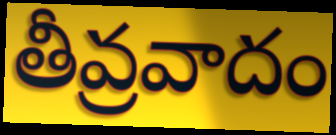
తీవ్రవాదం